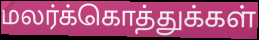
மலர்க்கொத்துக்கள்